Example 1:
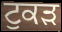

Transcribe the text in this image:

ਟੁਕੜ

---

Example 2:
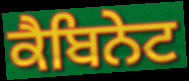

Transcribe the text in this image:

ਕੈਬਿਨੇਟ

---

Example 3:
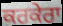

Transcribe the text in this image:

ਕਰਕੇਰਾ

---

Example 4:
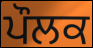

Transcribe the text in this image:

ਪੌਲਕ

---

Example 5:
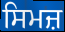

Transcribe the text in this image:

ਸਿਮਜ਼